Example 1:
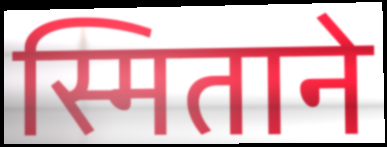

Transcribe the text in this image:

स्मिताने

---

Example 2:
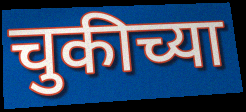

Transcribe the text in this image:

चुकीच्या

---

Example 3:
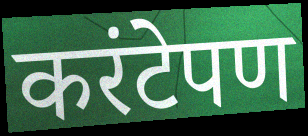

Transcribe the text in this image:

करंटेपण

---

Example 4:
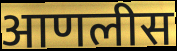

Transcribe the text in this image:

आणलीस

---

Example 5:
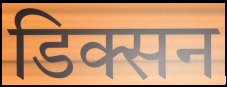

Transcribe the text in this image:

डिक्सन